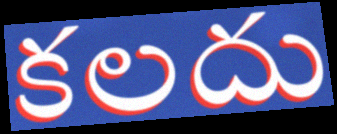
కలదు